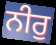
ਨੀਰੁ